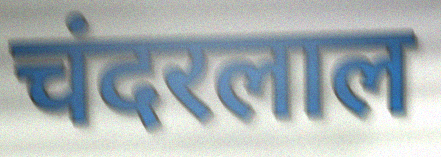
चंदरलाल